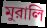
মুরালি